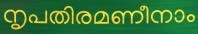
നൃപതിരമണീനാം